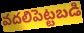
వదలిపెట్టబడి